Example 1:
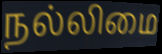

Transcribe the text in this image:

நல்லிமை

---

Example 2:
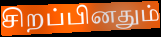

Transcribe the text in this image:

சிறப்பினதும்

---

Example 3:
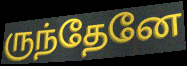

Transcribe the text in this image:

ருந்தேனே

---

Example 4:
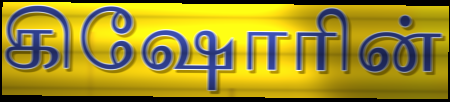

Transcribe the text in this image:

கிஷோரின்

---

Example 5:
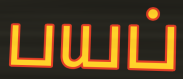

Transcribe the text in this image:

பயப்